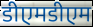
डीएमडीएम